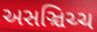
અસઞ્ચિચ્ચ